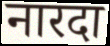
नारदा